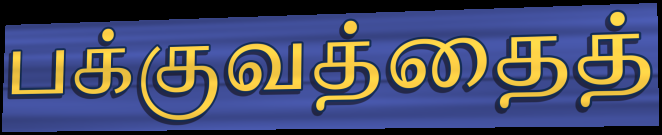
பக்குவத்தைத்